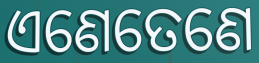
ଏଣେତେଣେ